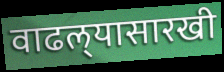
वाढल्यासारखी